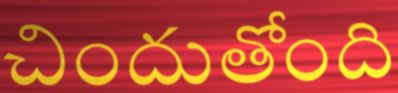
చిందుతోంది